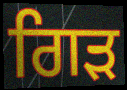
ਗਿੜ